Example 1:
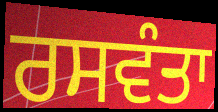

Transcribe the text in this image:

ਰਸਵੰਤਾ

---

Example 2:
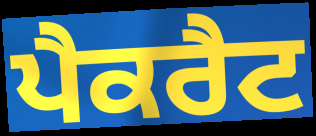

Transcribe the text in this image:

ਪੈਕਰੈਟ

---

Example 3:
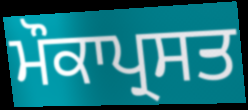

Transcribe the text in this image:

ਮੌਕਾਪ੍ਰਸਤ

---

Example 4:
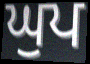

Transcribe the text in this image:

ਘੁਪ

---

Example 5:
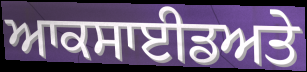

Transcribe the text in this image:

ਆਕਸਾਈਡਅਤੇ